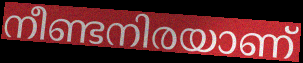
നീണ്ടനിരയാണ്